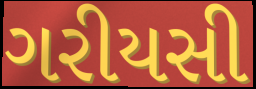
ગરીયસી